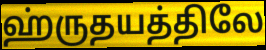
ஹ்ருதயத்திலே